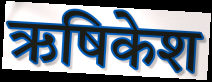
ऋषिकेश